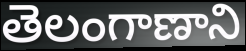
తెలంగాణాని